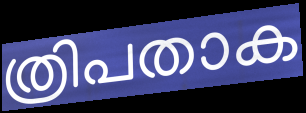
ത്രിപതാക